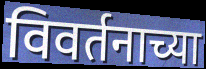
विवर्तनाच्या